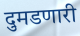
दुमडणारी